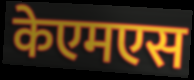
केएमएस